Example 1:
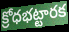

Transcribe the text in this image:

క్రోధభట్టారక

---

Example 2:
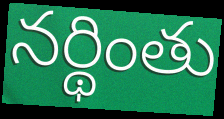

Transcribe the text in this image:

నర్థింతు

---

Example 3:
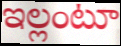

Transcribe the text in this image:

ఇల్లంటూ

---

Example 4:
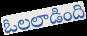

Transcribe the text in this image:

ఓలలాడింది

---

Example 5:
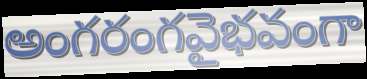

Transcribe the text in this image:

అంగరంగవైభవంగా